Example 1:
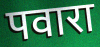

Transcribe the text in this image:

पवारा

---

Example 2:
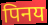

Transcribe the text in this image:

पिनय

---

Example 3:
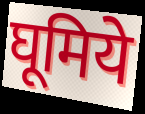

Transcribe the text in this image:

घूमिये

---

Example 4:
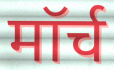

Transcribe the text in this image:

मॉर्च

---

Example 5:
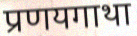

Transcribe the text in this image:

प्रणयगाथा